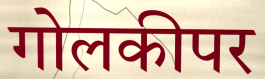
गोलकीपर